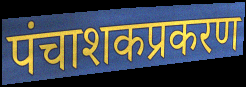
पंचाशकप्रकरण